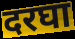
दरघा